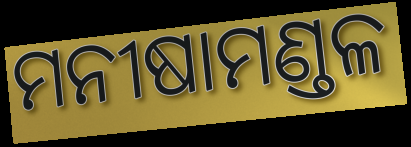
ମନୀଷାମଣ୍ଡଳ